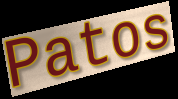
Patos